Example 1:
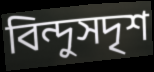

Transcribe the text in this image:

বিন্দুসদৃশ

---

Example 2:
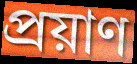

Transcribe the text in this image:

প্ৰয়াণ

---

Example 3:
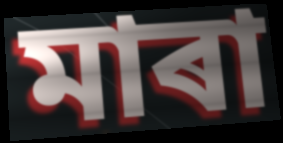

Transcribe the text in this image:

মাৰা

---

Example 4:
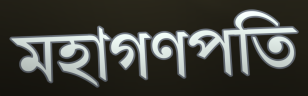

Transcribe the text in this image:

মহাগণপতি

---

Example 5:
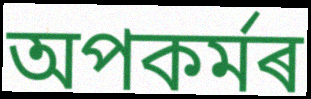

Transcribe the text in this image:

অপকৰ্মৰ